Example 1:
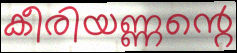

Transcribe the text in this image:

കീരിയണ്ണന്റെ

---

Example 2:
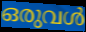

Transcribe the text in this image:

ഒരുവൾ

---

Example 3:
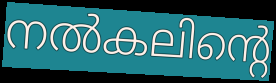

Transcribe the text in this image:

നൽകലിന്റെ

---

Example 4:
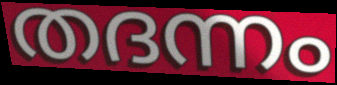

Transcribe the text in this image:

തദന്നം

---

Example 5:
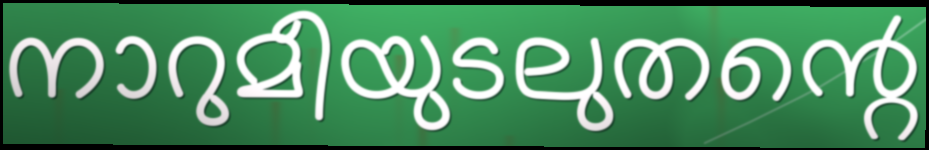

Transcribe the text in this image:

നാറുമീയുടലുതന്റെ